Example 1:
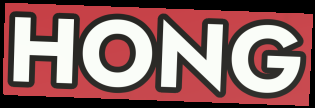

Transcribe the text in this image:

HONG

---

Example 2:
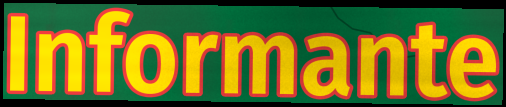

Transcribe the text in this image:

Informante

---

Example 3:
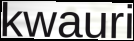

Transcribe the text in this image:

kwauri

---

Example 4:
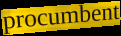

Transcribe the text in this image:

procumbent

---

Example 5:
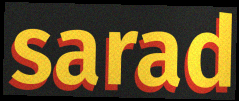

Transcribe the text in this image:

sarad